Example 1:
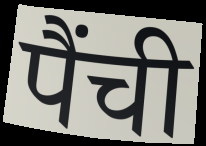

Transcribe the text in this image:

पैंची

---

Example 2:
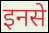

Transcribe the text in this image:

इनसे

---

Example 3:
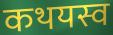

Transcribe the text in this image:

कथयस्व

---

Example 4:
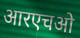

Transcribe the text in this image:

आरएचओ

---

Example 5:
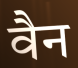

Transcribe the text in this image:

वैन